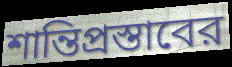
শান্তিপ্রস্তাবের